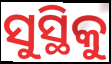
ସୁସ୍ଥିକୁ